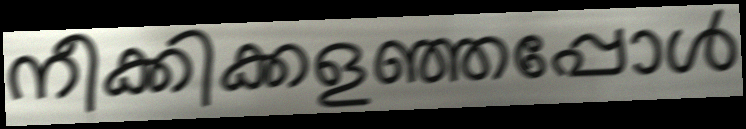
നീക്കിക്കളഞ്ഞപ്പോൾ